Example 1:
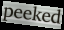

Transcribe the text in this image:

peeked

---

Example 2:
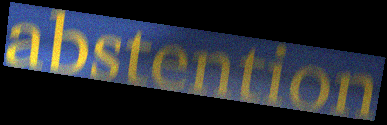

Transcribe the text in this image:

abstention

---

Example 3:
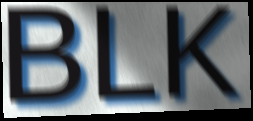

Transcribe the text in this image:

BLK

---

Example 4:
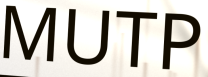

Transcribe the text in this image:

MUTP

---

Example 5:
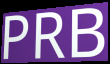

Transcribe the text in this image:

PRB